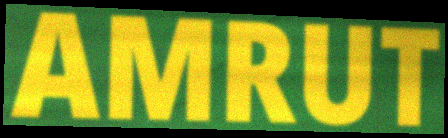
AMRUT